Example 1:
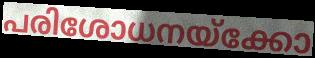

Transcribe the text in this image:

പരിശോധനയ്ക്കോ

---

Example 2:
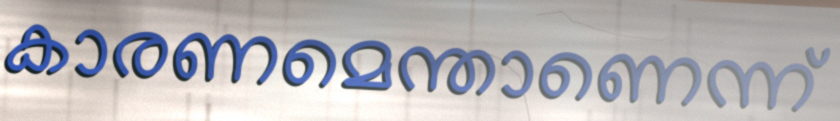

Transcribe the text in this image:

കാരണമെന്താണെന്ന്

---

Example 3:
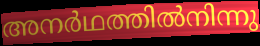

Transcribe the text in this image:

അനർഥത്തിൽനിന്നു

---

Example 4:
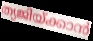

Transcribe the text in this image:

ത്യജിയ്ക്കാൻ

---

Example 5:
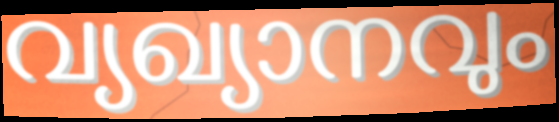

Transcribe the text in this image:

വ്യഖ്യാനവും